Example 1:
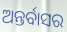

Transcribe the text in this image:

ଅନ୍ତର୍ବାସର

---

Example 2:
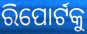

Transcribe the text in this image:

ରିପୋର୍ଟକୁ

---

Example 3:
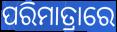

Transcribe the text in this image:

ପରିମାତ୍ରାରେ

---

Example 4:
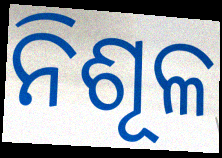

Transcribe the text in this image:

ନିଶୂଳ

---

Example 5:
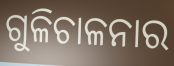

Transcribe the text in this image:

ଗୁଳିଚାଳନାର